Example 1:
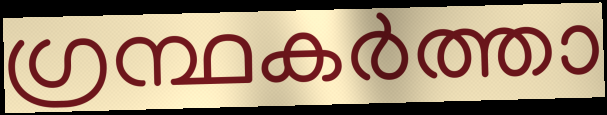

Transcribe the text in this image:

ഗ്രന്ഥകർത്താ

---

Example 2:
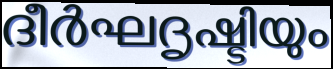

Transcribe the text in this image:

ദീർഘദൃഷ്ടിയും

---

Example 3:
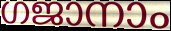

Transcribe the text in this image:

ഗജാനാം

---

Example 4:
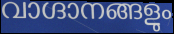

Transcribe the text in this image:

വാഗ്ദാനങ്ങളും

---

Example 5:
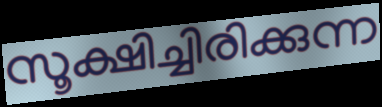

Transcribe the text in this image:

സൂക്ഷിച്ചിരിക്കുന്ന